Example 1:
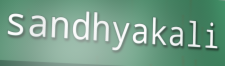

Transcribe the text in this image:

sandhyakali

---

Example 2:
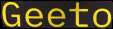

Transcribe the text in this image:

Geeto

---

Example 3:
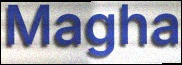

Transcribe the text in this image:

Magha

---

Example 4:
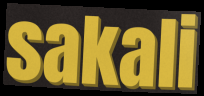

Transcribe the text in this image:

sakali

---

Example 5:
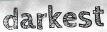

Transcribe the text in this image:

darkest